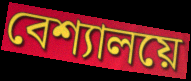
বেশ্যালয়ে